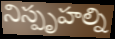
నిస్పృహల్ని